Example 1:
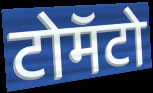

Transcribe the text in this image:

टोमॅटो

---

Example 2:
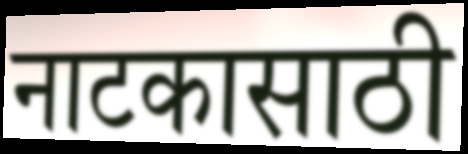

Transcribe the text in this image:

नाटकासाठी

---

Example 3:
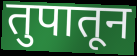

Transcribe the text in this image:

तुपातून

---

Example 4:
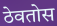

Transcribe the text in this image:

ठेवतोस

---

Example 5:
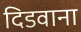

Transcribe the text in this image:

दिडवाना